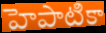
హెపాటికా